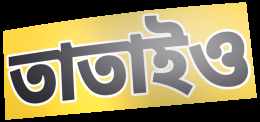
তাতাইও